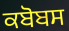
ਕਬੋਬਸ